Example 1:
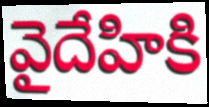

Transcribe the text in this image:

వైదేహికి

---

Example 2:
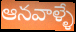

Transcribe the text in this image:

ఆనవాళ్ళే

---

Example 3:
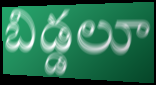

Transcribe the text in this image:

బిడ్డలూ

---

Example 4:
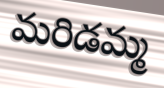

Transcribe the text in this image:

మరిడమ్మ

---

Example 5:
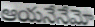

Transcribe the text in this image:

ఆయనేనేమో